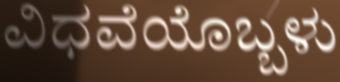
ವಿಧವೆಯೊಬ್ಬಳು